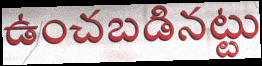
ఉంచబడినట్టు